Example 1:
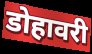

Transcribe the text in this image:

डोहावरी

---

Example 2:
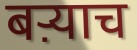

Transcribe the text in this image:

बऱ्‍याच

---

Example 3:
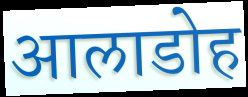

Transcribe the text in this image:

आलाडोह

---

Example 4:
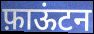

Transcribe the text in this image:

फ़ाऊंटन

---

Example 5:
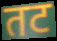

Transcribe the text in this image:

तट